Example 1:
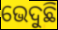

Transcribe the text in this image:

ଭେଦୁଛି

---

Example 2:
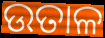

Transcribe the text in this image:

ଉତାଳ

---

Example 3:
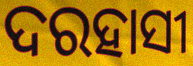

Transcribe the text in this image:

ଦରହାସୀ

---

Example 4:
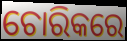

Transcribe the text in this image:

ଚୋରିକରେ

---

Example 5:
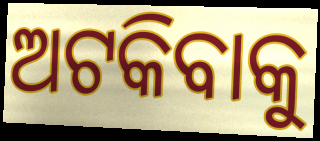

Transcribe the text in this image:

ଅଟକିବାକୁ